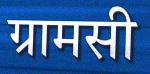
ग्रामसी